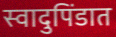
स्वादुपिंडात